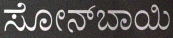
ಸೋನ್‍ಬಾಯಿ